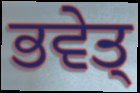
ਭਵੇਤ੍